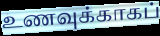
உணவுக்காகப்